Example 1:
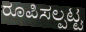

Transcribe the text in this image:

ರೂಪಿಸಲ್ಪಟ್ಟ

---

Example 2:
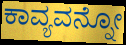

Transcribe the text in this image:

ಕಾವ್ಯವನ್ನೋ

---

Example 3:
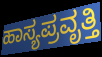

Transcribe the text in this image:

ಹಾಸ್ಯಪ್ರವೃತ್ತಿ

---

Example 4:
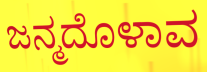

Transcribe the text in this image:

ಜನ್ಮದೊಳಾವ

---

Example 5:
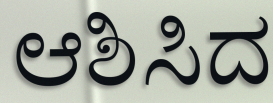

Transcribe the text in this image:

ಆಶಿಸಿದ